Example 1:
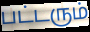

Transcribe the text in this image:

பட்டரும்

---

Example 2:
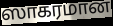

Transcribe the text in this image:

ஸாகரமான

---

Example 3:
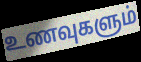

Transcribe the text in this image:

உணவுகளும்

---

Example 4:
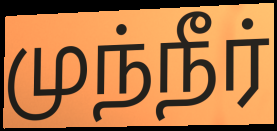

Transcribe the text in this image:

முந்நீர்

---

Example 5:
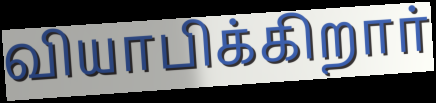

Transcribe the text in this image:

வியாபிக்கிறார்